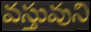
వస్తువుని